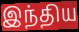
இந்திய